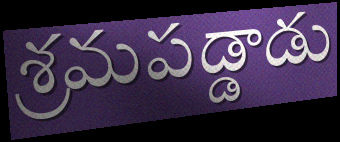
శ్రమపడ్డాడు